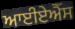
ਆਈਏਐੱਸ